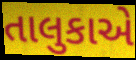
તાલુકાએ